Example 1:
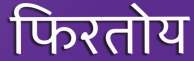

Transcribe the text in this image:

फिरतोय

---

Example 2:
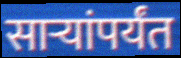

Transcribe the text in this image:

साऱ्यांपर्यंत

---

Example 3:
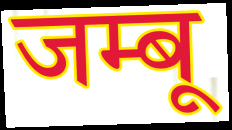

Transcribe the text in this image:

जम्बू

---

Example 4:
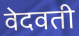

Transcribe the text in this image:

वेदवती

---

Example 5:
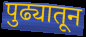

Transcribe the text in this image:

पुढ्यातून